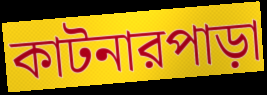
কাটনারপাড়া